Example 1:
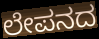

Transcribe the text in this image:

ಲೇಪನದ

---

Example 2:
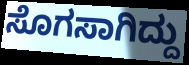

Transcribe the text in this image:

ಸೊಗಸಾಗಿದ್ದು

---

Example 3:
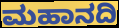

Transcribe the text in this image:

ಮಹಾನದಿ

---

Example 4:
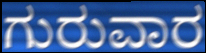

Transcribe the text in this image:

ಗುರುವಾರ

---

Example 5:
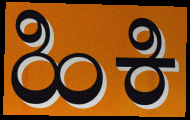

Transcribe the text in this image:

ಹಿಕಿ